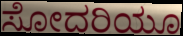
ಸೋದರಿಯೂ